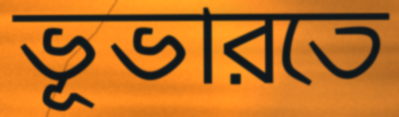
ভূভারতে